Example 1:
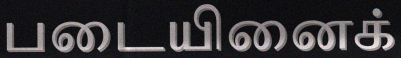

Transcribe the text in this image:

படையினைக்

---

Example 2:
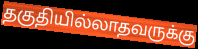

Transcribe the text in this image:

தகுதியில்லாதவருக்கு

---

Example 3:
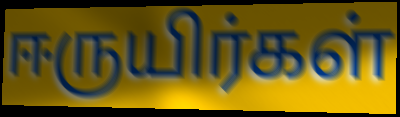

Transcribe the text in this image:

ஈருயிர்கள்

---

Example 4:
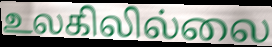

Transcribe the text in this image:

உலகிலில்லை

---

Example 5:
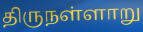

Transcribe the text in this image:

திருநள்ளாறு